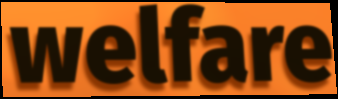
welfare